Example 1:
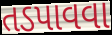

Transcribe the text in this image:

તડપાવવા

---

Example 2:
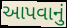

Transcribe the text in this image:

આપવાનું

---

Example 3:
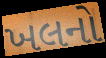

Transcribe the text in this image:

ખલનો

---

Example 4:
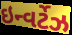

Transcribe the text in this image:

ઇન્વર્ટેઝ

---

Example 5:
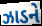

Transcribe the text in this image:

ઝાડને